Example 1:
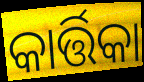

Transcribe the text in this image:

କାର୍ତ୍ତିକା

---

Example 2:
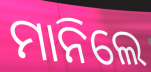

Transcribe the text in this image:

ମାନିଲେ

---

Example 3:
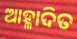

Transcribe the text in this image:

ଆହ୍ଳାଦିତ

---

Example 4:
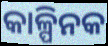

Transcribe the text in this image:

କାଳ୍ପିନକ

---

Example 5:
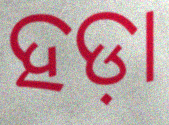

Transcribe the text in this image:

ହଡ଼ା